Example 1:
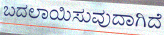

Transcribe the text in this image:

ಬದಲಾಯಿಸುವುದಾಗಿದೆ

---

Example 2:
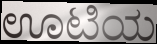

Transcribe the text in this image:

ಊಟಿಯ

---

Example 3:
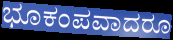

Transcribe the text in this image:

ಭೂಕಂಪವಾದರೂ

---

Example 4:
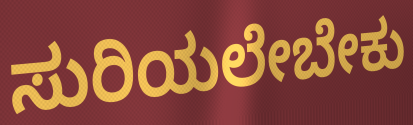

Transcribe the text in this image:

ಸುರಿಯಲೇಬೇಕು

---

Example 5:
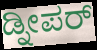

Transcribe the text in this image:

ಡ್ನೀಪರ್